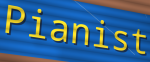
Pianist